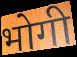
भोगी